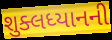
શુક્લધ્યાનની